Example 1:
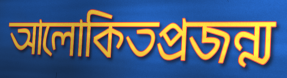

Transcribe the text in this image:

আলোকিতপ্রজন্ম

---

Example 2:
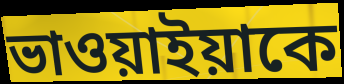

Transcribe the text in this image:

ভাওয়াইয়াকে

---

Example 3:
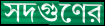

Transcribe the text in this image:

সদগুণের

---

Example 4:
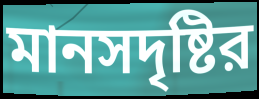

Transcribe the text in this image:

মানসদৃষ্টির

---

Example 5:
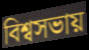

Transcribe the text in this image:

বিশ্বসভায়